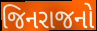
જિનરાજનો